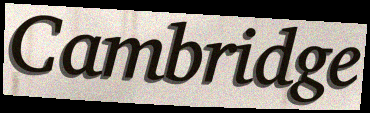
Cambridge